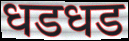
धडधड